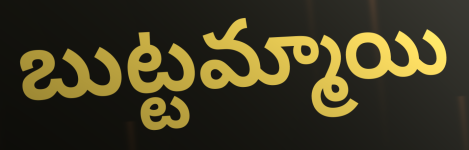
బుట్టమ్మాయి